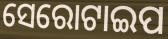
ସେରୋଟାଇପ